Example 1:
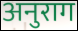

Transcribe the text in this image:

अनुराग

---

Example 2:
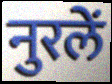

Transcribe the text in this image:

नुरलें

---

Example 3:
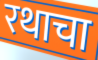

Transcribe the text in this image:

रथाचा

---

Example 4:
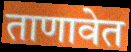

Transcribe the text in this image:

ताणावेत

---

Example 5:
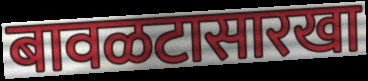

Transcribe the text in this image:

बावळटासारखा